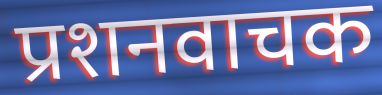
प्रशनवाचक